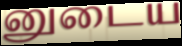
னுடைய